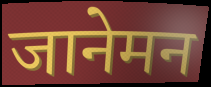
जानेमन